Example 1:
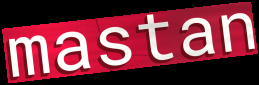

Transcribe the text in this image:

mastan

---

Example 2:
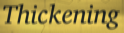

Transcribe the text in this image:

Thickening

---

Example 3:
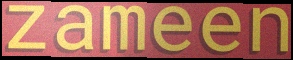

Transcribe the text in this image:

zameen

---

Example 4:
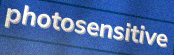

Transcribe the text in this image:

photosensitive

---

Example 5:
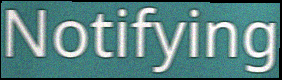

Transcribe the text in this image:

Notifying